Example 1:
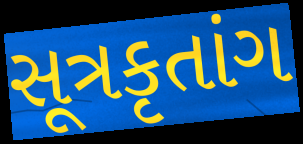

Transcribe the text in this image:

સૂત્રકૃતાંગ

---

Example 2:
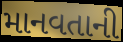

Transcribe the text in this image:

માનવતાની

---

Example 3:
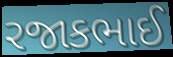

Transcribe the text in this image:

રજાકભાઈ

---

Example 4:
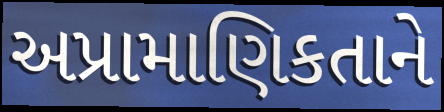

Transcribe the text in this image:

અપ્રામાણિકતાને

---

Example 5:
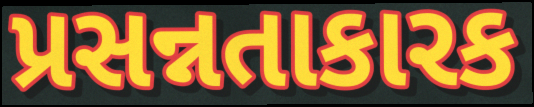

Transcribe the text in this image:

પ્રસન્નતાકારક